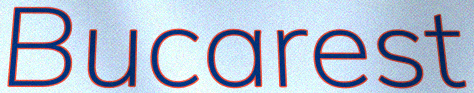
Bucarest